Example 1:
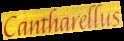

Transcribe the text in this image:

Cantharellus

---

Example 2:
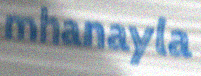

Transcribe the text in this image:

mhanayla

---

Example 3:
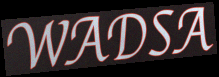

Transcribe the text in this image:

WADSA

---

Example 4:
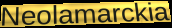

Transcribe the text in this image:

Neolamarckia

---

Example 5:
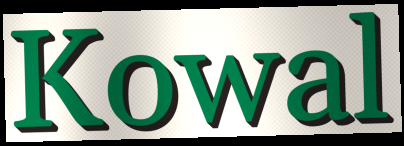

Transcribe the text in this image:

Kowal